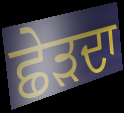
ਛੇੜਦਾ